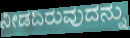
ನೀಡದಿರುವುದನ್ನು